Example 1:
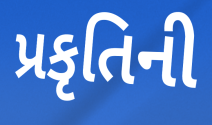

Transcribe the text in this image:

પ્રકૃતિની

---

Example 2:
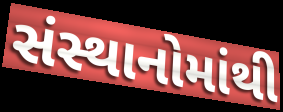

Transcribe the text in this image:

સંસ્થાનોમાંથી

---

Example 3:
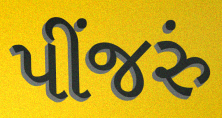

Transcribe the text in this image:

પીંજરું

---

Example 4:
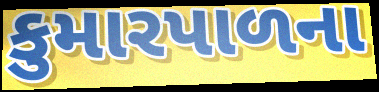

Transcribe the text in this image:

કુમારપાળના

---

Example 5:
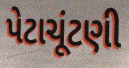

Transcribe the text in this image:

પેટાચૂંટણી